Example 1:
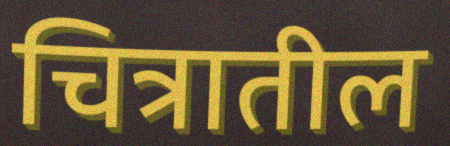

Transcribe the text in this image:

चित्रातील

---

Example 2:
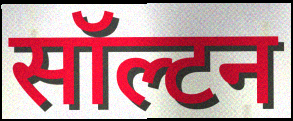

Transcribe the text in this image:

सॉल्टन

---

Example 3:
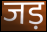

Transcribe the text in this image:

जड़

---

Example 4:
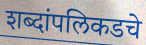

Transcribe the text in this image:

शब्दांपलिकडचे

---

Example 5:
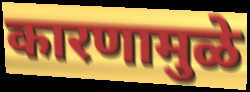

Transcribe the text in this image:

कारणामुळे